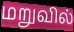
மறுவில்